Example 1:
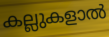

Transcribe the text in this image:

കല്ലുകളാൽ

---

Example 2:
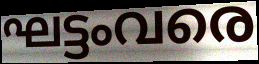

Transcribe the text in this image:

ഘട്ടംവരെ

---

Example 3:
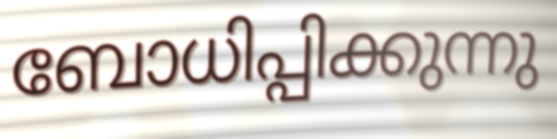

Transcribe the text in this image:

ബോധിപ്പിക്കുന്നു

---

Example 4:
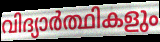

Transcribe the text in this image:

വിദ്യാർത്ഥികളും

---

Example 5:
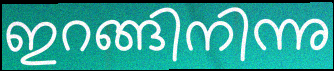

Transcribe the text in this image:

ഇറങ്ങിനിന്നു